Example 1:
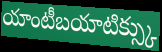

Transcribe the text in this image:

యాంటీబయాటిక్స్కు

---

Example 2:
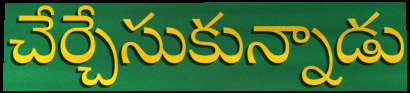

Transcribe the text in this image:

చేర్చేసుకున్నాడు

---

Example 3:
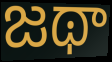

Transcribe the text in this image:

జథా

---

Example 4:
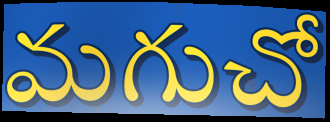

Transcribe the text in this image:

మగుచో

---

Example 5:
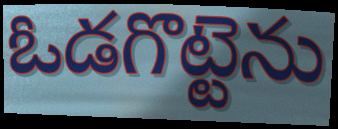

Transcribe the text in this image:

ఓడగొట్టెను